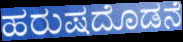
ಹರುಷದೊಡನೆ